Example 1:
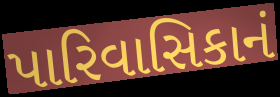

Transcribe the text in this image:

પારિવાસિકાનં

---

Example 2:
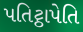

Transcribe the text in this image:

પતિટ્ઠાપેતિ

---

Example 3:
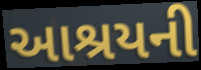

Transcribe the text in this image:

આશ્રયની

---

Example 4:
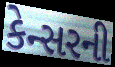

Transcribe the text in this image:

કેન્સરની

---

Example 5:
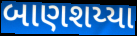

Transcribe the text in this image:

બાણશય્યા